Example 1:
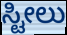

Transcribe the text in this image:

ಸ್ಟೀಲು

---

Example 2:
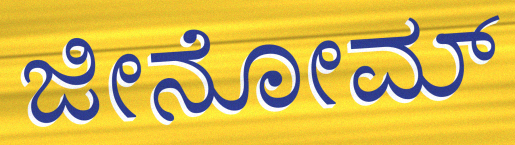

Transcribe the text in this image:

ಜೀನೋಮ್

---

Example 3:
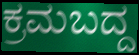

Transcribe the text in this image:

ಕ್ರಮಬದ್ದ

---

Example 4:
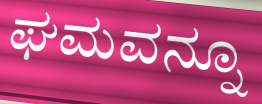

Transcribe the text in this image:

ಘಮವನ್ನೂ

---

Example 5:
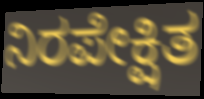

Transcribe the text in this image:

ನಿರಪೇಕ್ಷಿತ